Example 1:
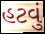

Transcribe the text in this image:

હટવું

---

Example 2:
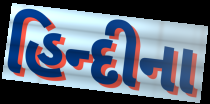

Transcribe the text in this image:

હિન્દીના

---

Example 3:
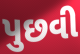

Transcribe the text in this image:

પુછવી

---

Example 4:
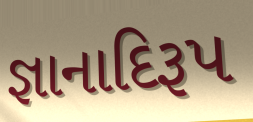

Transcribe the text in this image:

જ્ઞાનાદિરૂપ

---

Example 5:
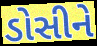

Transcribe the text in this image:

ડોસીને